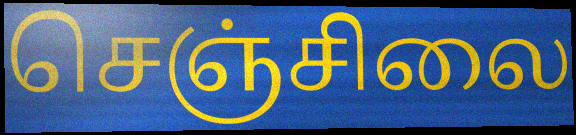
செஞ்சிலை